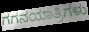
ಗಗನಯಾತ್ರಿಗಳು